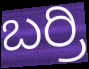
ಬರ್ರಿ